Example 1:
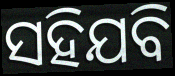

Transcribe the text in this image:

ସହିଯବି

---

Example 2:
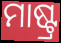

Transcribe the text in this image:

ମାଷ୍ଟ୍ର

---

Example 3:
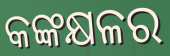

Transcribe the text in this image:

କଙ୍କକ୍ଷଳର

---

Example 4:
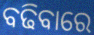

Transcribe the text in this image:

ବଢିବାରେ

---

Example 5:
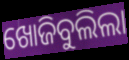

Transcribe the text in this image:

ଖୋଜିବୁଲିଲା